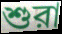
শুরা